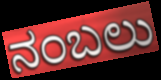
ನಂಬಲು